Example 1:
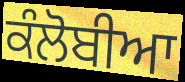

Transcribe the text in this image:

ਕੰਲੋਬੀਆ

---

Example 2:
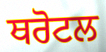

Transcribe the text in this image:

ਥਰੋਟਲ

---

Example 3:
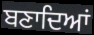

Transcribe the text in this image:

ਬਣਾਦਿਆਂ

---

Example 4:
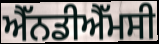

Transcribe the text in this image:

ਐੱਨਡੀਐੱਮਸੀ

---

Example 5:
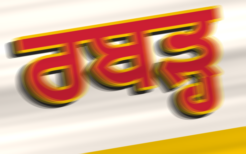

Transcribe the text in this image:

ਰਬੜ੍ਹ